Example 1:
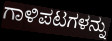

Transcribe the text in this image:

ಗಾಳಿಪಟಗಳನ್ನು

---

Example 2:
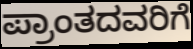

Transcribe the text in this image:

ಪ್ರಾಂತದವರಿಗೆ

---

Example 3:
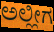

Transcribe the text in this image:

ಅಲ್ಲೀಗ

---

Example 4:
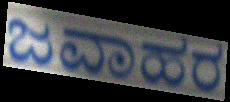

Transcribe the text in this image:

ಜವಾಹರ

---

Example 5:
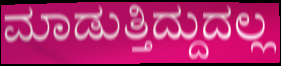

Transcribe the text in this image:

ಮಾಡುತ್ತಿದ್ದುದಲ್ಲ